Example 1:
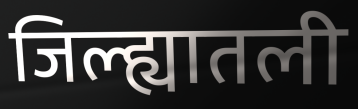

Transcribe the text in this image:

जिल्ह्यातली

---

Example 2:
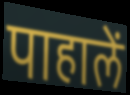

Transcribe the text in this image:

पाहालें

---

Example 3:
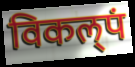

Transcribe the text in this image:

विकल्पं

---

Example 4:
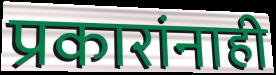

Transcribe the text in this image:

प्रकारांनाही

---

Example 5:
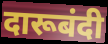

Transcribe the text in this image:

दारूबंदी